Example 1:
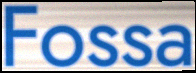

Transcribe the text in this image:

Fossa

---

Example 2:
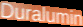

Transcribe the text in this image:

Duralumin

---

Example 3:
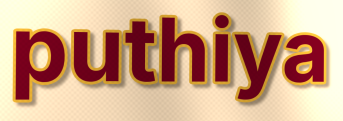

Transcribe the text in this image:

puthiya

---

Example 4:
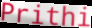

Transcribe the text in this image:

Prithi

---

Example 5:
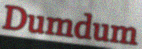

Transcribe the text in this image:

Dumdum